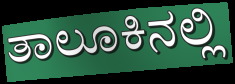
ತಾಲೂಕಿನಲ್ಲಿ